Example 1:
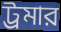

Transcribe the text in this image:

ট্রমার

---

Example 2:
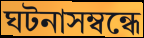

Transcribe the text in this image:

ঘটনাসম্বন্ধে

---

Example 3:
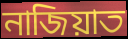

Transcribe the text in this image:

নাজিয়াত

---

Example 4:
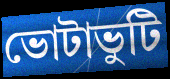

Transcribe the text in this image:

ভোটাভুটি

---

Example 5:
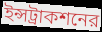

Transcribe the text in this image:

ইন্সট্রাকশনের